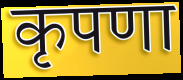
कृपणा